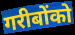
गरीबोंको